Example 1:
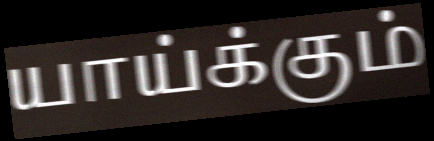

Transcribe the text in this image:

யாய்க்கும்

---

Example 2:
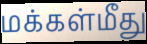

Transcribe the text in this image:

மக்கள்மீது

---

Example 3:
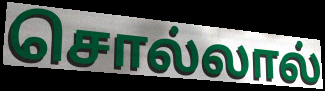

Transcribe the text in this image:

சொல்லால்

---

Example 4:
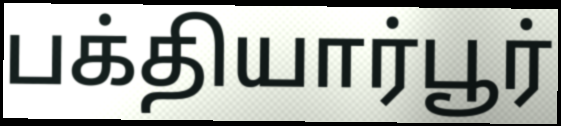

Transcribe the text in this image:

பக்தியார்பூர்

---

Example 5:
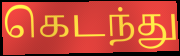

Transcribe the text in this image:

கெடந்து